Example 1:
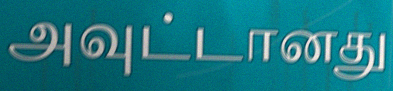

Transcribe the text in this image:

அவுட்டானது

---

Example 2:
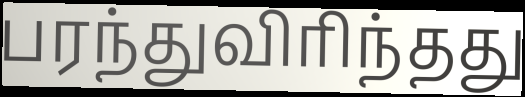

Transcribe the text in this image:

பரந்துவிரிந்தது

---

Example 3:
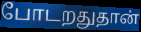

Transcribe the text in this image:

போடறதுதான்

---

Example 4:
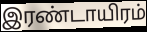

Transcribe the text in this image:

இரண்டாயிரம்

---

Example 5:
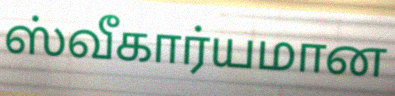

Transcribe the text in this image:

ஸ்வீகார்யமான